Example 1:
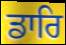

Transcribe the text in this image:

ਡਾਰਿ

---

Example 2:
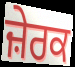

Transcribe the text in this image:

ਜ਼ੇਰਕ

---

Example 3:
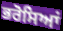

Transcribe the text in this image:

ਭਰੋਸਿਆਂ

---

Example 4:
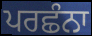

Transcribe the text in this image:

ਪਰਛੰਨਾ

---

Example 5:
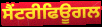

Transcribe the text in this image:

ਸੈਂਟਰੀਫਿਊਗਲ